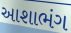
આશાભંગ